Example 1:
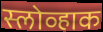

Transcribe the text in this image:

स्लोव्हाक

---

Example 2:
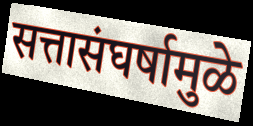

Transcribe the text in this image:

सत्तासंघर्षामुळे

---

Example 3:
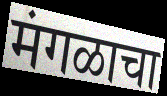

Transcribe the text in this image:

मंगळाचा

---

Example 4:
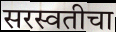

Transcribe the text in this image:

सरस्वतीचा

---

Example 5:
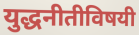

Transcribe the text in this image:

युद्धनीतीविषयी